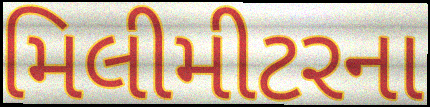
મિલીમીટરના